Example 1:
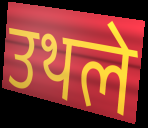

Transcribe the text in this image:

उथले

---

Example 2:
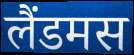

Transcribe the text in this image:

लैंडमस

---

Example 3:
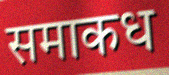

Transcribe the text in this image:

समाकध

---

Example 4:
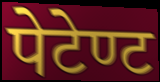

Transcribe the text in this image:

पेटेण्ट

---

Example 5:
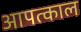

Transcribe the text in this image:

आपत्काल